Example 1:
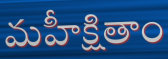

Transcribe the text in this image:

మహీక్షితాం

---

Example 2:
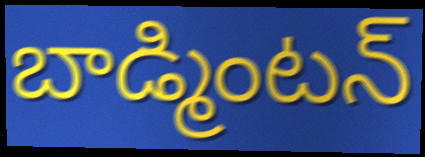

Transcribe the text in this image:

బాడ్మింటన్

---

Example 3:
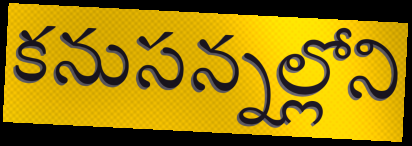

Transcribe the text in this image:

కనుసన్నల్లోని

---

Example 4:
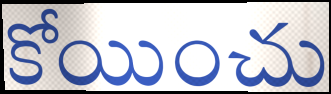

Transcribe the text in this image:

కోయించు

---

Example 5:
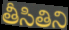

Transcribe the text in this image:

తీసితిని